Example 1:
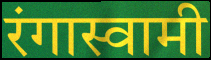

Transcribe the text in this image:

रंगास्वामी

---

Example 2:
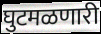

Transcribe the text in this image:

घुटमळणारी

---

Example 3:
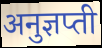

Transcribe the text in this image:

अनुज्ञप्ती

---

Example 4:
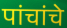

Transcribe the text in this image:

पांचांचे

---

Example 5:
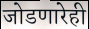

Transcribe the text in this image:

जोडणारेही